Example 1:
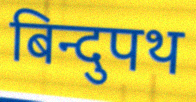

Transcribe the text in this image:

बिन्दुपथ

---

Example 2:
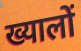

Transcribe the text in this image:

ख्यालों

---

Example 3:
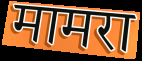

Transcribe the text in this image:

मामरा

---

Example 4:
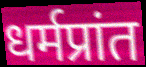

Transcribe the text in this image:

धर्मप्रांत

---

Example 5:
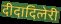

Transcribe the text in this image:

दीदादिलेरी